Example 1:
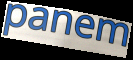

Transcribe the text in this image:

panem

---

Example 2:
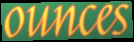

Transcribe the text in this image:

ounces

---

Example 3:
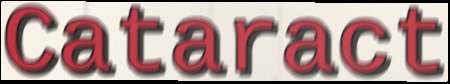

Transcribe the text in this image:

Cataract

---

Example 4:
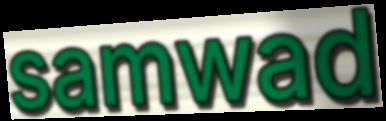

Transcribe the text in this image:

samwad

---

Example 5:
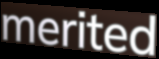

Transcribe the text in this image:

merited